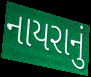
નાયરાનું